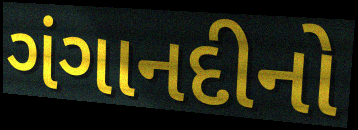
ગંગાનદીનો